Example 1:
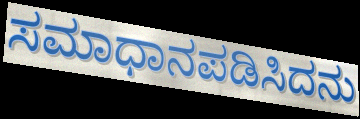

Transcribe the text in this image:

ಸಮಾಧಾನಪಡಿಸಿದನು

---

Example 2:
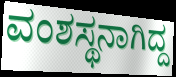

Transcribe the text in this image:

ವಂಶಸ್ಥನಾಗಿದ್ದ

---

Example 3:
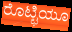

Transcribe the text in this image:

ರೊಟ್ಟಿಯೂ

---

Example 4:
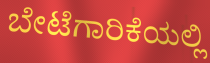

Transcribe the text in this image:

ಬೇಟೆಗಾರಿಕೆಯಲ್ಲಿ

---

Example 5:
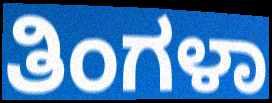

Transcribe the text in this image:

ತಿಂಗಳಾ